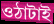
ওঠাটাই